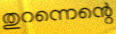
തുറന്നെന്റെ